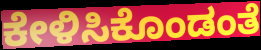
ಕೇಳಿಸಿಕೊಂಡಂತೆ